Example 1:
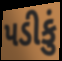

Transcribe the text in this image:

પડીકું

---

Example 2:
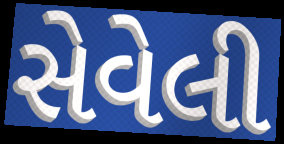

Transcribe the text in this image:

સેવેલી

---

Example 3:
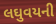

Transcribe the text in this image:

લઘુવયની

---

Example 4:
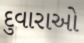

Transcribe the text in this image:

દુવારાઓ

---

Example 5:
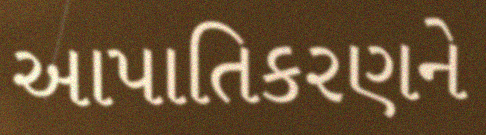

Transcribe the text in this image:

આપાતિકરણને